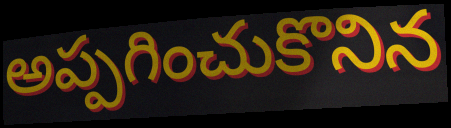
అప్పగించుకొనిన